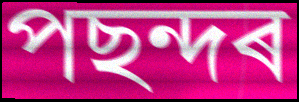
পছন্দৰ